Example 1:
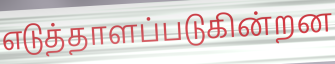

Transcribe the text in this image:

எடுத்தாளப்படுகின்றன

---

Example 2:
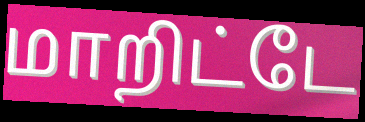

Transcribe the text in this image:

மாறிட்டே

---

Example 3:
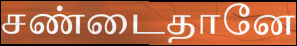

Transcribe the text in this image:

சண்டைதானே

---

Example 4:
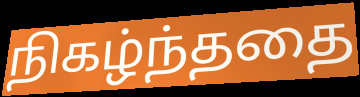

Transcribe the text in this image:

நிகழ்ந்ததை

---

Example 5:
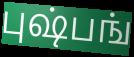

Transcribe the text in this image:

புஷ்பங்